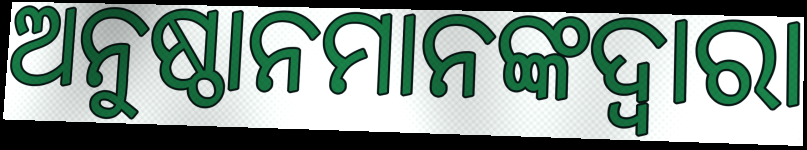
ଅନୁଷ୍ଠାନମାନଙ୍କଦ୍ଵାରା